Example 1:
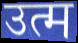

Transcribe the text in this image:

उत्म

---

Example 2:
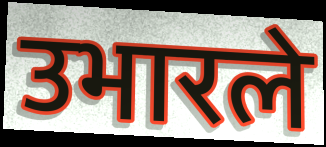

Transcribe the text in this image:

उभारले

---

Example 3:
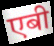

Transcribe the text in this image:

एबी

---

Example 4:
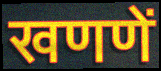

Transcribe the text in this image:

खणणें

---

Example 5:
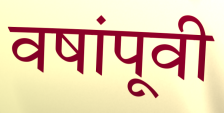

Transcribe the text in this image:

वषांपूवी